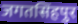
जगतसिंहपुर